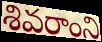
శివరాంని